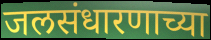
जलसंधारणाच्या